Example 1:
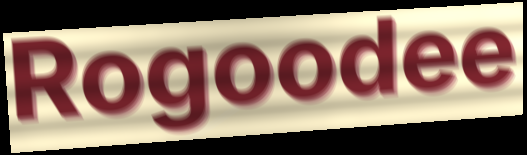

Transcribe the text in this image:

Rogoodee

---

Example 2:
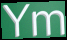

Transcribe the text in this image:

Ym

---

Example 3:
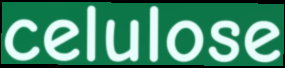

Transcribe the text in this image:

celulose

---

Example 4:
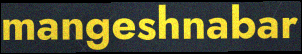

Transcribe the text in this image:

mangeshnabar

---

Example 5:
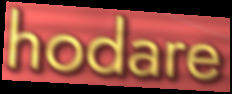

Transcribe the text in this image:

hodare